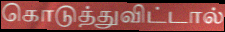
கொடுத்துவிட்டால்